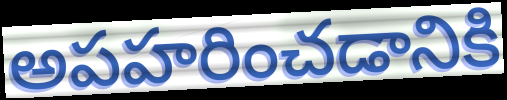
అపహరించడానికి